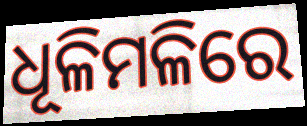
ଧୂଳିମଳିରେ